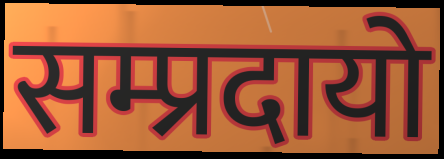
सम्प्रदायो